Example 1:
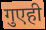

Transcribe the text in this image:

गुएही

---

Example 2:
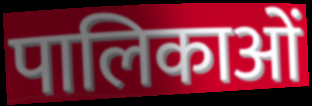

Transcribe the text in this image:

पालिकाओं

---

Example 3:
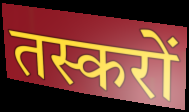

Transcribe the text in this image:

तस्करों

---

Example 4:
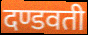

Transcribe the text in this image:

दण्डवती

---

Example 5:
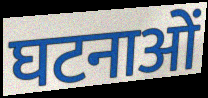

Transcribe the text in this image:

घटनाओं